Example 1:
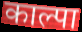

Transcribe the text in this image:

काल्पा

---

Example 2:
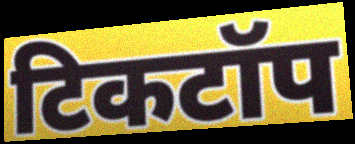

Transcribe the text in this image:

टिकटॉप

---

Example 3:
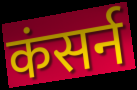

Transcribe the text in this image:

कंसर्न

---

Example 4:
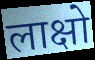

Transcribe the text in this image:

लाक्षो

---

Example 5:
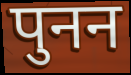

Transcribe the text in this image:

पुनन